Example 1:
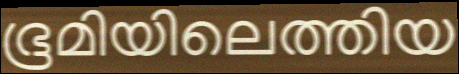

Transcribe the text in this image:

ഭൂമിയിലെത്തിയ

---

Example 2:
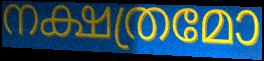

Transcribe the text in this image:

നക്ഷത്രമോ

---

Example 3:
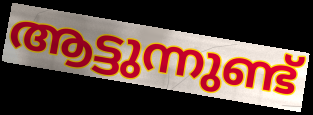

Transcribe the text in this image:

ആട്ടുന്നുണ്ട്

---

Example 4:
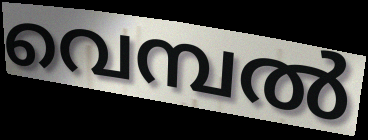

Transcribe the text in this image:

വെമ്പൽ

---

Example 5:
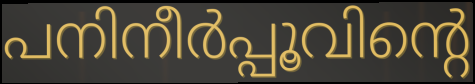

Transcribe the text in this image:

പനിനീർപ്പൂവിന്റെ